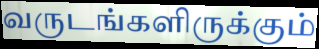
வருடங்களிருக்கும்